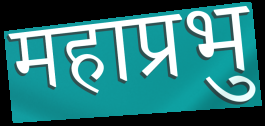
महाप्रभु